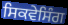
ਸਿਕਵੇਸਿੰਗ